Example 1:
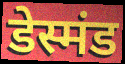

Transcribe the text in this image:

डेस्मंड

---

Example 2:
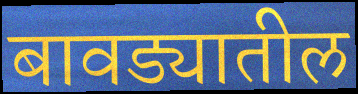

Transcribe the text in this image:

बावड्यातील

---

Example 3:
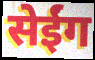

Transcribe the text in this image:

सेईंग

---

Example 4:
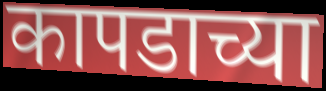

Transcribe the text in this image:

कापडाच्या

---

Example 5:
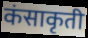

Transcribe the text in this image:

कंसाकृती